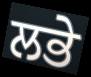
ਲਭੇ